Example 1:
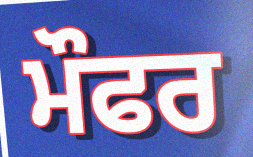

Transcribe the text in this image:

ਮੌਫਰ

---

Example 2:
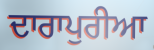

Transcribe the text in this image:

ਦਾਰਾਪੁਰੀਆ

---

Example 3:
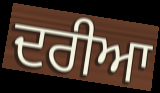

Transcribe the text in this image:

ਦਰੀਆ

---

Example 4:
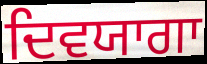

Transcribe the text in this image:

ਦਿਵਯਾਗਾ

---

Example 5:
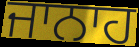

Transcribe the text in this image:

ਜਾਨਾਹ